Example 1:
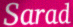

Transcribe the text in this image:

Sarad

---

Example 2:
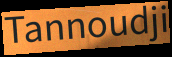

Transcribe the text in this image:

Tannoudji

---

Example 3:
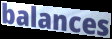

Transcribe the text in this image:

balances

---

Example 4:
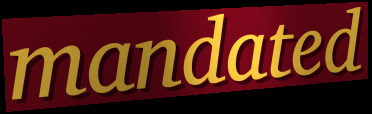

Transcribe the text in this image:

mandated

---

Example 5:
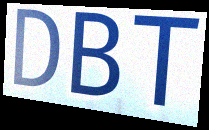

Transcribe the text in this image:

DBT